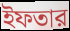
ইফতার